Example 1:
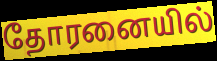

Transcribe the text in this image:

தோரனையில்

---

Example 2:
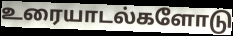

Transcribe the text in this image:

உரையாடல்களோடு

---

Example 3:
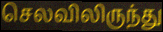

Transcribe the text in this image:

செலவிலிருந்து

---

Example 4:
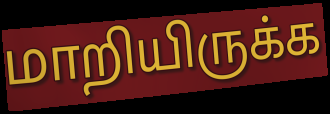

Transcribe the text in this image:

மாறியிருக்க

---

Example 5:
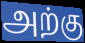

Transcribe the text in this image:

அற்கு